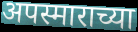
अपस्माराच्या